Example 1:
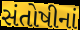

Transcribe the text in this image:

સંતોષીનાં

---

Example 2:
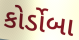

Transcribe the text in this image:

કોર્ડોબા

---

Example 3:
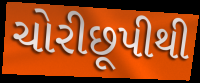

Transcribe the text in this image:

ચોરીછૂપીથી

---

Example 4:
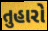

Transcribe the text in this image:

તુહારો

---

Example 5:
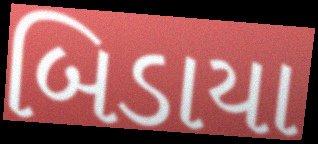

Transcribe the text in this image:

બિડાયા